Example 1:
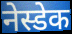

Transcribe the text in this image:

नेस्डेक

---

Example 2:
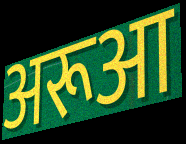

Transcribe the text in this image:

अरूआ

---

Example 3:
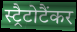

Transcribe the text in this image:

स्ट्रैटोटैंकर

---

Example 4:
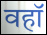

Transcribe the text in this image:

वहॉ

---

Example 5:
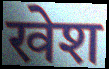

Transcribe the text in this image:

खेश